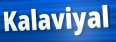
Kalaviyal